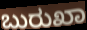
ಬುರುಖಾ